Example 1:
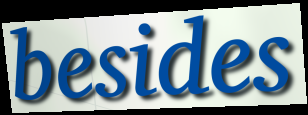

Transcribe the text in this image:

besides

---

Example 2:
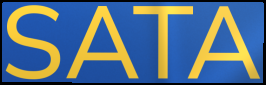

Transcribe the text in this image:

SATA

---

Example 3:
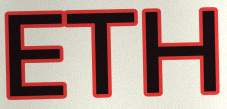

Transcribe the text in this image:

ETH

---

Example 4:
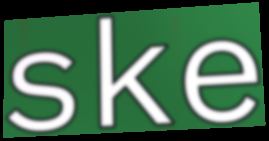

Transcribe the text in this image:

ske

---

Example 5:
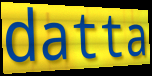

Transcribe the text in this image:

datta